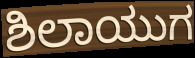
ಶಿಲಾಯುಗ